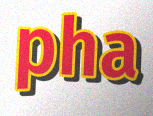
pha